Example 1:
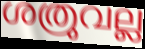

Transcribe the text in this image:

ശത്രുവല്ല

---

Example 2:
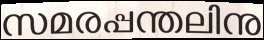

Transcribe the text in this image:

സമരപ്പന്തലിനു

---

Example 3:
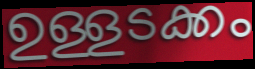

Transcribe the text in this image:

ഉള്ളടക്കം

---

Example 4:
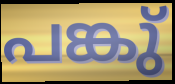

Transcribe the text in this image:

പങ്കു്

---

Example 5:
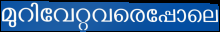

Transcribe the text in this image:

മുറിവേറ്റവരെപ്പോലെ